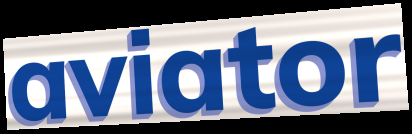
aviator